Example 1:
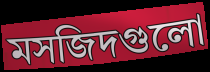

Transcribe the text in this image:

মসজিদগুলো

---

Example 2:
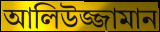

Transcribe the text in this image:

আলিউজ্জামান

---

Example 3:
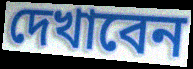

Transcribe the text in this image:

দেখাবেন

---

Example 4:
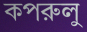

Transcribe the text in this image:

কপরুলু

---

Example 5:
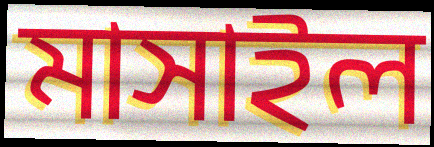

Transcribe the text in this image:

মাসাইল